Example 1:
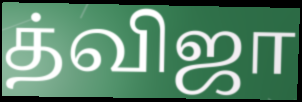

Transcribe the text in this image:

த்விஜா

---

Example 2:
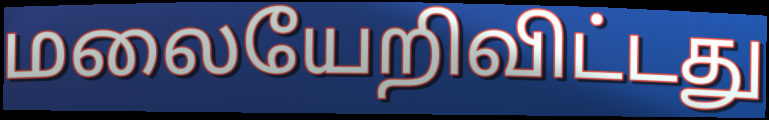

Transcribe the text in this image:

மலையேறிவிட்டது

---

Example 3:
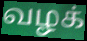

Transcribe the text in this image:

வழக்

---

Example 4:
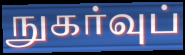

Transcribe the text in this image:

நுகர்வுப்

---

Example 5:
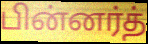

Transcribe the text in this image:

பின்னர்த்